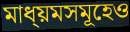
মাধ্য়মসমূহেও